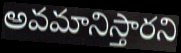
అవమానిస్తారని